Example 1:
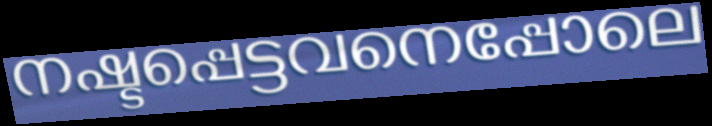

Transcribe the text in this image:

നഷ്ടപ്പെട്ടവനെപ്പോലെ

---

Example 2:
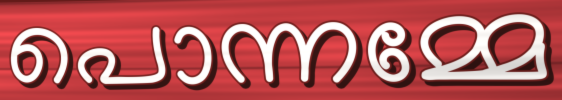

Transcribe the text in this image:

പൊന്നമ്മേ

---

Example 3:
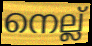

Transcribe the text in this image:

നെല്ല്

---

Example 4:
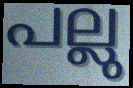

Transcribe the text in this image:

പല്ലു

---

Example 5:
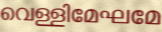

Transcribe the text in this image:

വെള്ളിമേഘമേ